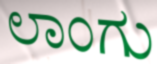
ಲಾಂಗು